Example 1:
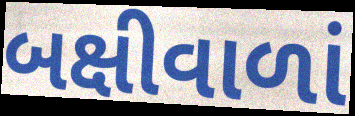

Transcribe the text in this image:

બક્ષીવાળાં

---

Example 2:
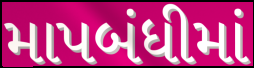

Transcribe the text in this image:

માપબંધીમાં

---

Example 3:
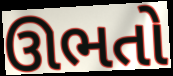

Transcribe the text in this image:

ઊભતો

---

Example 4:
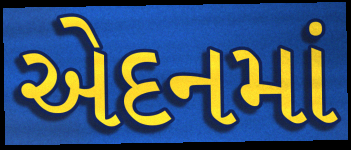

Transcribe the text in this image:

એદનમાં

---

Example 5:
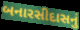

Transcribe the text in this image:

બનારસીદાસનું